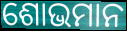
ଶୋଭମାନ